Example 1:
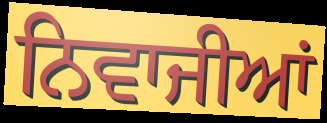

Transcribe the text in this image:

ਨਿਵਾਜੀਆਂ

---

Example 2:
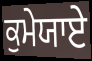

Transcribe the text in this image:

ਕੁਮੇਯਾਏ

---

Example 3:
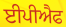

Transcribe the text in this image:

ਈਪੀਐਫ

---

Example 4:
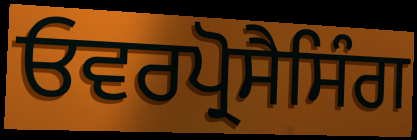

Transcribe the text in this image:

ਓਵਰਪ੍ਰੋਸੈਸਿੰਗ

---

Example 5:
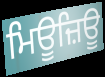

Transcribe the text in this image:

ਮਿਊਜ਼ਿਊ